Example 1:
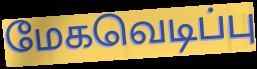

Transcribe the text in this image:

மேகவெடிப்பு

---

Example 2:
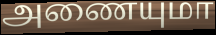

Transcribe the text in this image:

அணையுமா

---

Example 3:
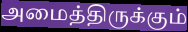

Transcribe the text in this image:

அமைத்திருக்கும்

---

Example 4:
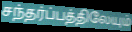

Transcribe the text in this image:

சந்தர்ப்பத்திலேயும்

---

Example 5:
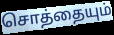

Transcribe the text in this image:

சொத்தையும்